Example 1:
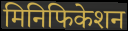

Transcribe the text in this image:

मिनिफिकेशन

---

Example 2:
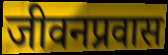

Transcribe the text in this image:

जीवनप्रवास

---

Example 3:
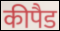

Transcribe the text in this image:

कीपैड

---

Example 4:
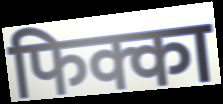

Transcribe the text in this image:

फिक्का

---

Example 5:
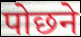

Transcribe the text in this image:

पोछने